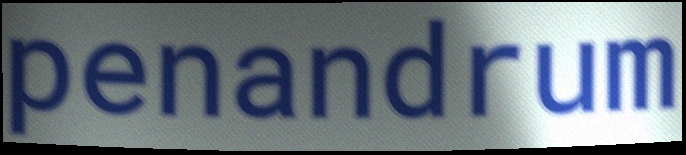
penandrum